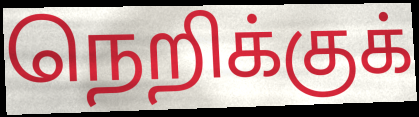
நெறிக்குக்